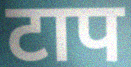
टाप